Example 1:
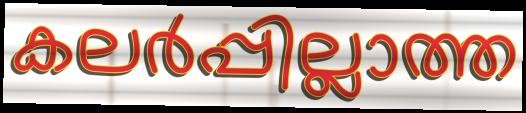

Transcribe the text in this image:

കലർപ്പില്ലാത്ത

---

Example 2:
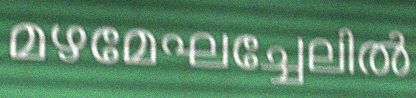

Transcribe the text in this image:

മഴമേഘച്ചേലിൽ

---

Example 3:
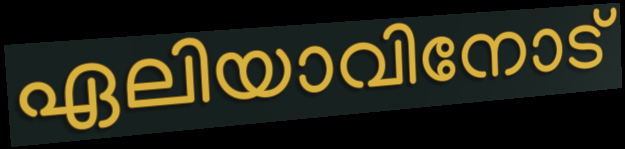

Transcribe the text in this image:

ഏലിയാവിനോട്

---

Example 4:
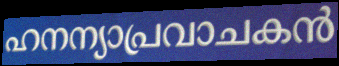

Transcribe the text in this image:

ഹനന്യാപ്രവാചകൻ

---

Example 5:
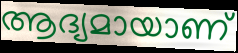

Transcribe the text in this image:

ആദ്യമായാണ്